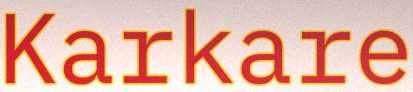
Karkare